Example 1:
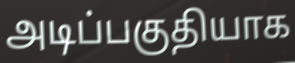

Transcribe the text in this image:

அடிப்பகுதியாக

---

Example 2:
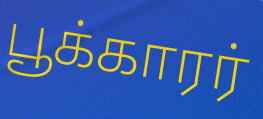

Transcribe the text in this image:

பூக்காரர்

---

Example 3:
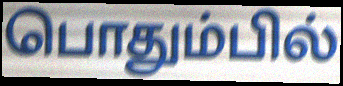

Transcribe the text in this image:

பொதும்பில்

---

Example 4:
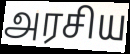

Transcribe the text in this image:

அரசிய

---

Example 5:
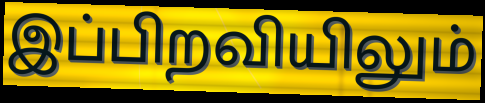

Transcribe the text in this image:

இப்பிறவியிலும்